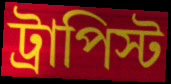
ট্রাপিস্ট